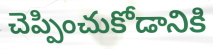
చెప్పించుకోడానికి